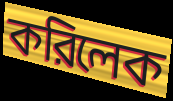
করিলেক